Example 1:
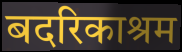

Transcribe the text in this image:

बदरिकाश्रम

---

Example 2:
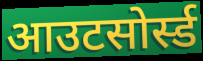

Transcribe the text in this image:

आउटसोर्स्ड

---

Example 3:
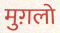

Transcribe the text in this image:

मुग़लो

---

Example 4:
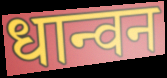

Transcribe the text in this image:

धान्वन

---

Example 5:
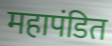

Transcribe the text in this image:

महापंडित